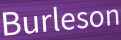
Burleson